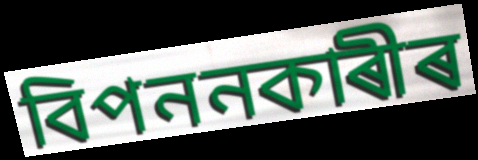
বিপননকাৰীৰ